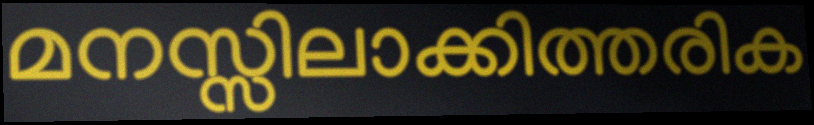
മനസ്സിലാക്കിത്തരിക